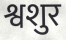
श्वशुर